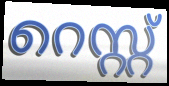
റെസ്റ്റ്